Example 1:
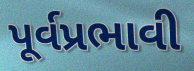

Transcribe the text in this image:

પૂર્વપ્રભાવી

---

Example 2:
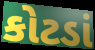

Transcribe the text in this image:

કોટડાં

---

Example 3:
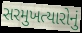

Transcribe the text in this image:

સરમુખત્યારોનું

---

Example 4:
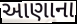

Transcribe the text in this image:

આણાના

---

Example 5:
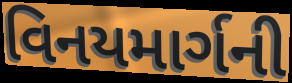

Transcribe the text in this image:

વિનયમાર્ગની